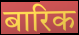
बारिक